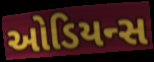
ઓડિયન્સ